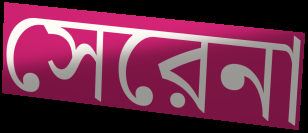
সেরেনা